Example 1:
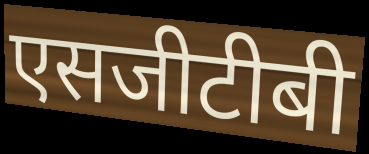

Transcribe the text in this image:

एसजीटीबी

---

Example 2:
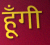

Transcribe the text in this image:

हूँगी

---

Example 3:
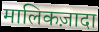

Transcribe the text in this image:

मालिकज़ादा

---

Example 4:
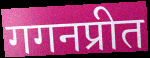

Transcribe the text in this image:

गगनप्रीत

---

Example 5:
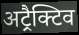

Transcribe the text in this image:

अट्रैक्टिव